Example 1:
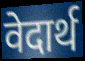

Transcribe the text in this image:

वेदार्थ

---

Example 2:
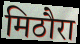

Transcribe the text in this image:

मिठौरा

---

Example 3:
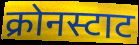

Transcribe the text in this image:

क्रोनस्टाट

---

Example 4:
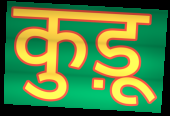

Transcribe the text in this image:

कुड़ू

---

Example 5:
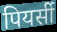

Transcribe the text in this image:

पियर्सी